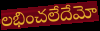
లభించలేదేమో